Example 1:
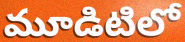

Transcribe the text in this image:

మూడిటిలో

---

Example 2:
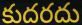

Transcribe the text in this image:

కుదరదు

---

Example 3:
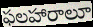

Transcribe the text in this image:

ఫలహారాలూ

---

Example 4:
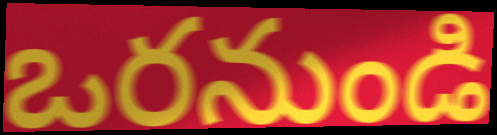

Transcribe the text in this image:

ఒరనుండి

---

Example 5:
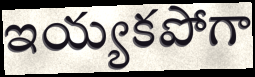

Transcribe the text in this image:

ఇయ్యకపోగా